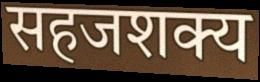
सहजशक्य